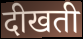
दीखती